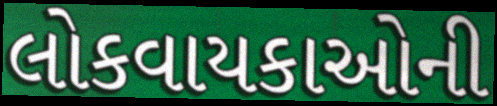
લોકવાયકાઓની